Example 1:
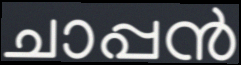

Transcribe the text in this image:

ചാപ്പൻ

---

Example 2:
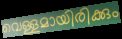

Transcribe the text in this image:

വെള്ളമായിരിക്കും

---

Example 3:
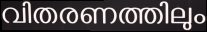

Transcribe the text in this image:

വിതരണത്തിലും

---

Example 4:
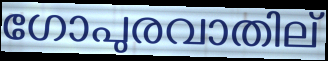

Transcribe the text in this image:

ഗോപുരവാതില്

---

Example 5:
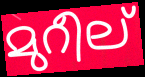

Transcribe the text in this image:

മുറീല്